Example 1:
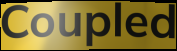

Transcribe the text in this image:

Coupled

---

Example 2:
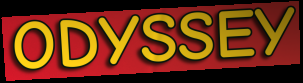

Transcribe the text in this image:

ODYSSEY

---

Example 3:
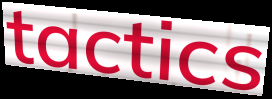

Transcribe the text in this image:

tactics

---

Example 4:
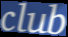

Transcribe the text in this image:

club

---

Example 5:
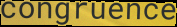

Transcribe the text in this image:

congruence